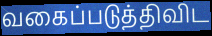
வகைப்படுத்திவிட